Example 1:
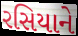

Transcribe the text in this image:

રસિયાને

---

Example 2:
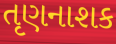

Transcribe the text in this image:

તૃણનાશક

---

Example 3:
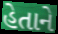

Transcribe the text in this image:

હેતાને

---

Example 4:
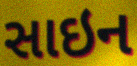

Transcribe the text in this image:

સાઇન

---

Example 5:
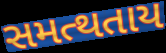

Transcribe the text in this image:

સમત્થતાય